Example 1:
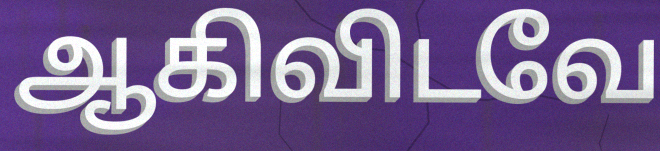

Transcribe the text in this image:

ஆகிவிடவே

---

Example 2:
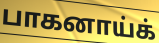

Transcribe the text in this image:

பாகனாய்க்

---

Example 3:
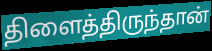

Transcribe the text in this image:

திளைத்திருந்தான்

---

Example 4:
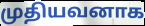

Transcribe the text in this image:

முதியவனாக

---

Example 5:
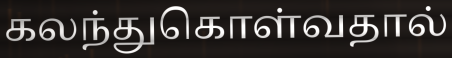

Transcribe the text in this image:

கலந்துகொள்வதால்